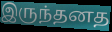
இருந்தனத